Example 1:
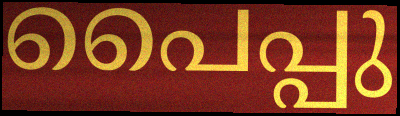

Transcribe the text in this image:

പൈപ്പു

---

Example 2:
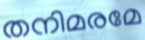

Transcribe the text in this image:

തനിമരമേ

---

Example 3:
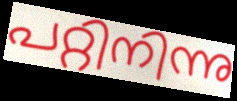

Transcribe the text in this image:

പറ്റിനിന്നു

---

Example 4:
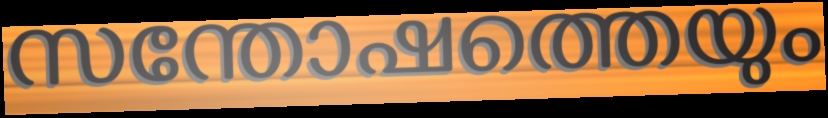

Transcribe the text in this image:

സന്തോഷത്തെയും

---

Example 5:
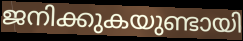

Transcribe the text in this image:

ജനിക്കുകയുണ്ടായി